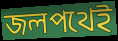
জলপথেই